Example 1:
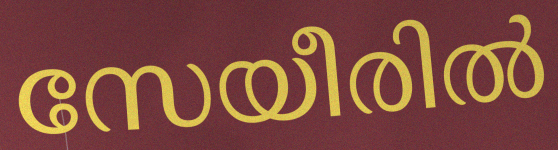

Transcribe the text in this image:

സേയീരിൽ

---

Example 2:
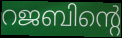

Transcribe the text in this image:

റജബിന്റെ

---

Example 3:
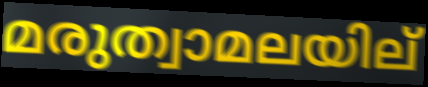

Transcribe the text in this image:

മരുത്വാമലയില്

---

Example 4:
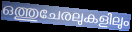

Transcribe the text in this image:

ഒത്തുചേരലുകളിലും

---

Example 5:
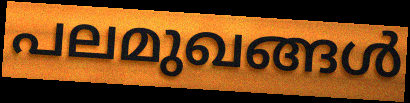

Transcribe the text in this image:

പലമുഖങ്ങൾ